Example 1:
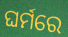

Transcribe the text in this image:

ଘର୍ମରେ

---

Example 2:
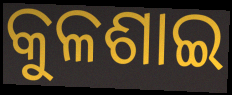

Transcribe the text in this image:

କୁଳଶାଇ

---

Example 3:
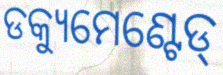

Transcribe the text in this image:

ଡକ୍ୟୁମେଣ୍ଟେଡ୍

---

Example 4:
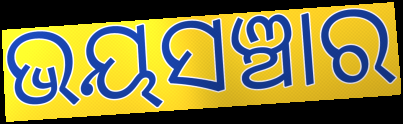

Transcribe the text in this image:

ଭୟସଞ୍ଚାର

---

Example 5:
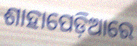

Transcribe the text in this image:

ଶାହାପେଡ଼ିଆରେ